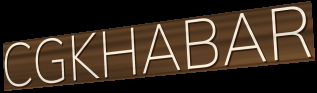
CGKHABAR